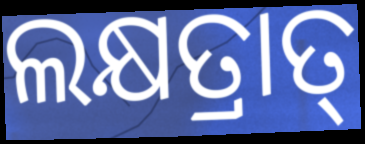
ଲକ୍ଷତ୍ରାତ୍